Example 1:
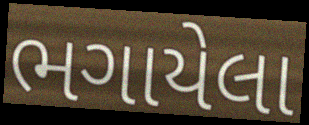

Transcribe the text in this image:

ભગાયેલા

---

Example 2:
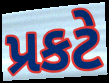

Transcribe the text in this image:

પ્રકટે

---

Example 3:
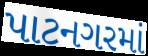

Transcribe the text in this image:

પાટનગરમાં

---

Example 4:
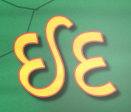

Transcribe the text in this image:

ઈદ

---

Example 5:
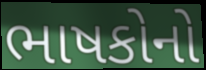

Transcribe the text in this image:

ભાષકોનો